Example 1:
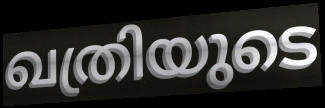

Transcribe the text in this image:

ഖത്രിയുടെ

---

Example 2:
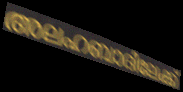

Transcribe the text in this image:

അലഹബാദിലേക്ക്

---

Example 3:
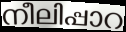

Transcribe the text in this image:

നീലിപ്പാറ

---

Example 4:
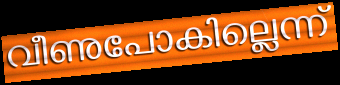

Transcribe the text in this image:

വീണുപോകില്ലെന്ന്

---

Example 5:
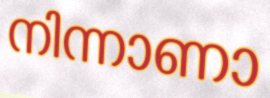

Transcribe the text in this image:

നിന്നാണാ